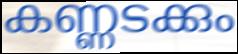
കണ്ണടക്കും